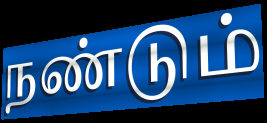
நண்டும்